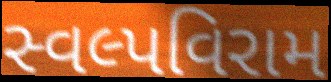
સ્વલ્પવિરામ